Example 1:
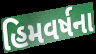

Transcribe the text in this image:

હિમવર્ષના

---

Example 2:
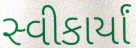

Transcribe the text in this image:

સ્વીકાર્યાં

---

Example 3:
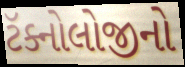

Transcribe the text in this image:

ટૅક્નોલોજીનો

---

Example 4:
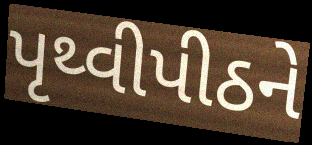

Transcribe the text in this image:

પૃથ્વીપીઠને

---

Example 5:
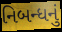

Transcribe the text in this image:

નિબન્ધનું